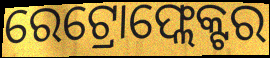
ରେଟ୍ରୋଫ୍ଲେକ୍ଟର